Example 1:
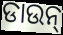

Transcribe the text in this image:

ଡାଉନ୍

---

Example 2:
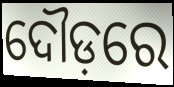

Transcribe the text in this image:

ଦୌଡ଼ରେ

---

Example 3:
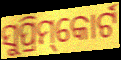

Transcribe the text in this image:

ସୁପ୍ରିମ୍‌କୋର୍ଟ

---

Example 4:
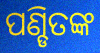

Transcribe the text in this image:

ପଣ୍ଡିତଙ୍କ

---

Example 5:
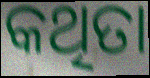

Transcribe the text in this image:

କଥିତା